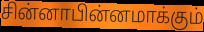
சின்னாபின்னமாக்கும்